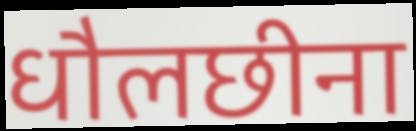
धौलछीना